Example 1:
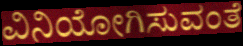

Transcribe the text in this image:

ವಿನಿಯೋಗಿಸುವಂತೆ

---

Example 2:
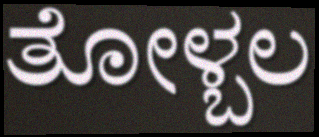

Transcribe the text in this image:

ತೋಳ್ಬಲ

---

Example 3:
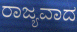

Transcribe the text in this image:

ರಾಜ್ಯವಾದ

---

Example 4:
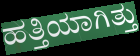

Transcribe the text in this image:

ಹತ್ತಿಯಾಗಿತ್ತು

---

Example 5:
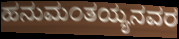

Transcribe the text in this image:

ಹನುಮಂತಯ್ಯನವರ